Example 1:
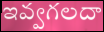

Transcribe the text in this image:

ఇవ్వగలదా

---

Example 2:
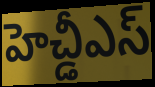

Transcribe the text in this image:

హెచ్డీఎస్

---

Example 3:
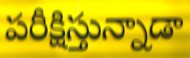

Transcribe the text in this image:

పరీక్షిస్తున్నాడా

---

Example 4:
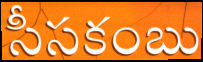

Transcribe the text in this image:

సీసకంబు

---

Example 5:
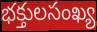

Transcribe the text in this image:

భక్తులసంఖ్య